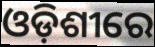
ଓଡ଼ିଶୀରେ